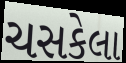
ચસકેલા